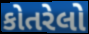
કોતરેલો